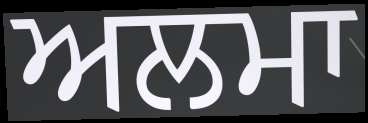
ਅਲਮਾ